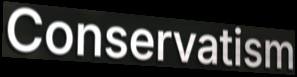
Conservatism